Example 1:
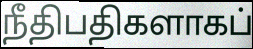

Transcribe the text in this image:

நீதிபதிகளாகப்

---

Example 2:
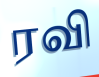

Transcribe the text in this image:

ரவி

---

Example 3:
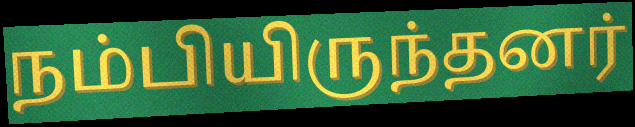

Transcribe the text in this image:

நம்பியிருந்தனர்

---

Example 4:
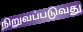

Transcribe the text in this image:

நிறுவப்படுவது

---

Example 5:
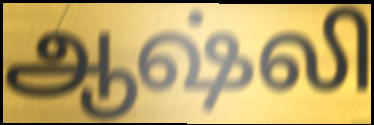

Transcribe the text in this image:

ஆஷ்லி